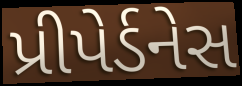
પ્રીપેર્ડનેસ